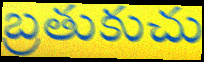
బ్రతుకుచు